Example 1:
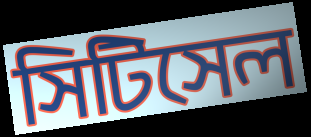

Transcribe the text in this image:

সিটিসেল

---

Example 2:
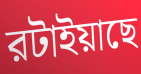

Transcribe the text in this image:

রটাইয়াছে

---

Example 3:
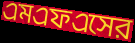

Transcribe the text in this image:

এমএফএসের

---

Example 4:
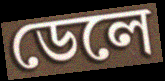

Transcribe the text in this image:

ডেলে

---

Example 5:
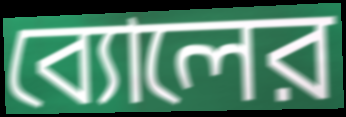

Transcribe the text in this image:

ব্যোলের